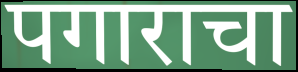
पगाराचा